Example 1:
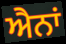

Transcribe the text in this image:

ਐਨਾਂ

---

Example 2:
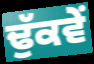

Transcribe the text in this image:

ਢੁੱਕਵੇਂ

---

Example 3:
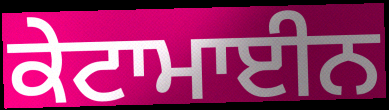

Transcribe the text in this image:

ਕੇਟਾਮਾਈਨ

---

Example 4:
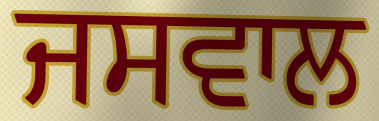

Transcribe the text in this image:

ਜਸਵਾਲ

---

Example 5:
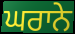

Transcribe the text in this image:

ਘਰਾਨੇ